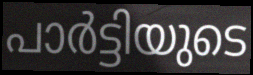
പാർട്ടിയുടെ